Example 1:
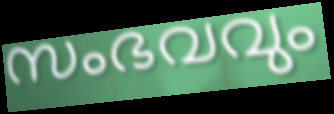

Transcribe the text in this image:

സംഭവവും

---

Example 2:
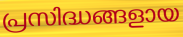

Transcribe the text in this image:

പ്രസിദ്ധങ്ങളായ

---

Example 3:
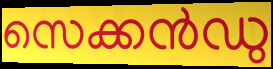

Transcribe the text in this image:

സെക്കൻഡു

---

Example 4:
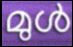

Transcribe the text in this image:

മുൾ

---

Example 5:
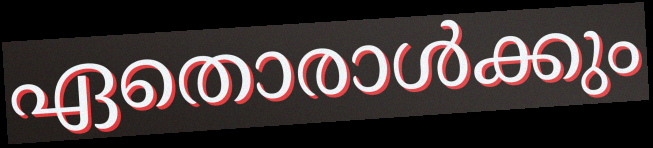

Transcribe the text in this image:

ഏതൊരാൾക്കും